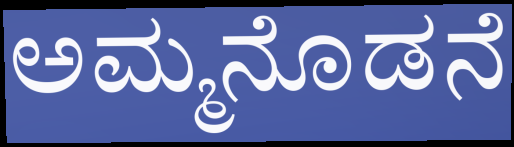
ಅಮ್ಮನೊಡನೆ